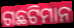
ଗଛଟିମାନ